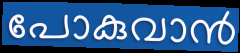
പോകുവാൻ